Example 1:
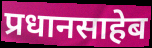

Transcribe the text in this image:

प्रधानसाहेब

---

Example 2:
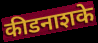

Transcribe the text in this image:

कीडनाशके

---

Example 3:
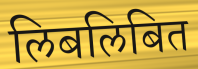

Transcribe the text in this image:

लिबलिबित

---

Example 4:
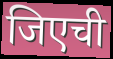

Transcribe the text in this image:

जिएची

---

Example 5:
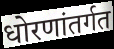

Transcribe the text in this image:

धोरणांतर्गत